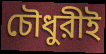
চৌধুরীই